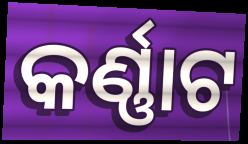
କର୍ଣ୍ଣାଟ